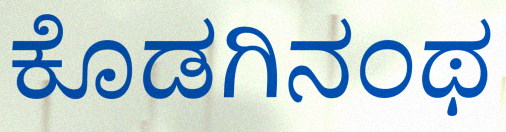
ಕೊಡಗಿನಂಥ